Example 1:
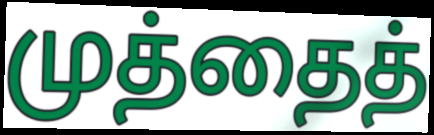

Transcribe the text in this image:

முத்தைத்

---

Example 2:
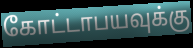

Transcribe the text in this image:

கோட்டாபயவுக்கு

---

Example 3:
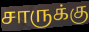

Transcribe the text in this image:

சாருக்கு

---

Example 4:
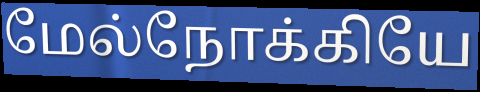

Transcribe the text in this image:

மேல்நோக்கியே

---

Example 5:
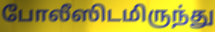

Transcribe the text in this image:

போலீஸிடமிருந்து